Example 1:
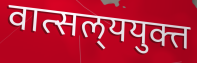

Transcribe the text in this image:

वात्सल्ययुक्त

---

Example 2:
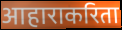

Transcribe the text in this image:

आहाराकरिता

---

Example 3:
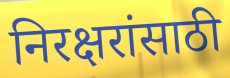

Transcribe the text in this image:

निरक्षरांसाठी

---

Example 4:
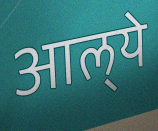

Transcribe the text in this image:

आल्ये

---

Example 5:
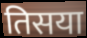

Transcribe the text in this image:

तिसया